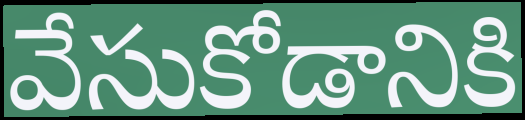
వేసుకోడానికి